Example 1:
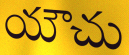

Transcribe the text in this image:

యౌచు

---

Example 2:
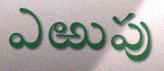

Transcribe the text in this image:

ఎఱుపు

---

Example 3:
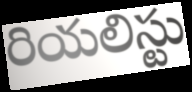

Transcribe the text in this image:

రియలిస్టు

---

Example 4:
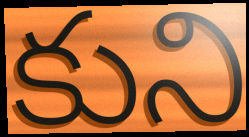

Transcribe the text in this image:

కుని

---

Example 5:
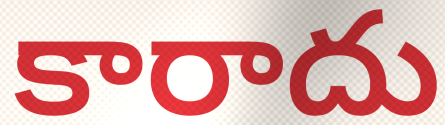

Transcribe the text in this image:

కారాదు